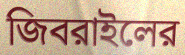
জিবরাইলের